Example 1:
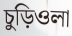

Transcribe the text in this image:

চুড়িওলা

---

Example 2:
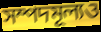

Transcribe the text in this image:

সম্পদমূল্যও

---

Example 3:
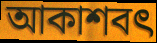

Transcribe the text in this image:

আকাশবৎ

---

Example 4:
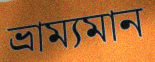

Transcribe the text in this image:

ভ্রাম্যমান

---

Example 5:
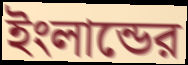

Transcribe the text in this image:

ইংলান্ডের